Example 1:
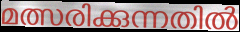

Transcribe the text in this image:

മത്സരിക്കുന്നതിൽ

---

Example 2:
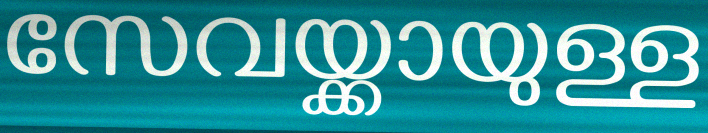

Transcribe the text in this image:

സേവയ്ക്കായുള്ള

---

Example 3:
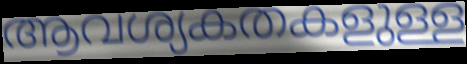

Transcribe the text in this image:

ആവശ്യകതകളുള്ള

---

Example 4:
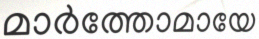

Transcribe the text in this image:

മാർത്തോമായേ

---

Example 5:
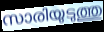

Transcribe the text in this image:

സാരിയുടുത്തു